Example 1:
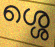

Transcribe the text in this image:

ശ്ശെ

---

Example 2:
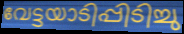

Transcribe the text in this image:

വേട്ടയാടിപ്പിടിച്ചു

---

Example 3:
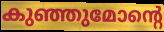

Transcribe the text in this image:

കുഞ്ഞുമോന്റെ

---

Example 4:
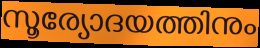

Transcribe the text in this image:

സൂര്യോദയത്തിനും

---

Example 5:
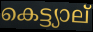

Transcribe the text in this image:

കെട്ട്യാല്